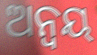
ଅନ୍ୱୟ